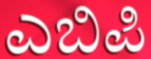
ಎಬಿಪಿ